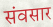
संवसार